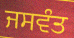
ਜਸਵੰਤ